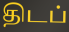
திடப்